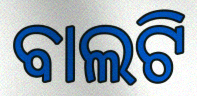
ବାଲଟି